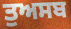
ਤੁਅਸਬ